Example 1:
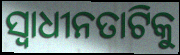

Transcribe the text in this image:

ସ୍ୱାଧୀନତାଟିକୁ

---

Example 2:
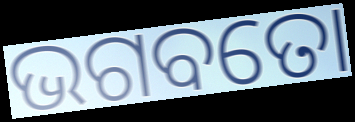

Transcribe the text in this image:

ଭଗବତୋ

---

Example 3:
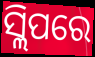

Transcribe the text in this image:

ସ୍ଲିପରେ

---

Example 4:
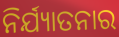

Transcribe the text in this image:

ନିର୍ଯ୍ୟାତନାର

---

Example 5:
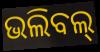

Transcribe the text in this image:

ଭଲିବଲ୍